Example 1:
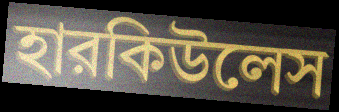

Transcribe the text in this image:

হারকিউলেস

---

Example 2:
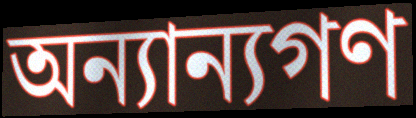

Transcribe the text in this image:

অন্যান্যগণ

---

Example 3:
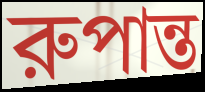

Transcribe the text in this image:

রুপান্ত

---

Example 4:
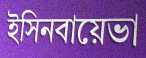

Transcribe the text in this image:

ইসিনবায়েভা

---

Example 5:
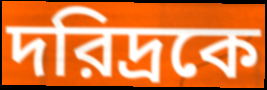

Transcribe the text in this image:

দরিদ্রকে